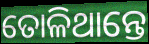
ତୋଳିଥାନ୍ତେ